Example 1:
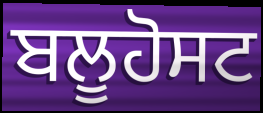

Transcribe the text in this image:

ਬਲੂਹੋਸਟ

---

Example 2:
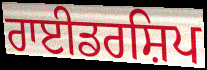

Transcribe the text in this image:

ਰਾਈਡਰਸ਼ਿਪ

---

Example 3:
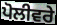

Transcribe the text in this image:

ਪੋਲੀਵਰੇ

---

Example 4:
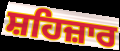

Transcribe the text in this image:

ਸ਼ਹਿਜ਼ਾਰ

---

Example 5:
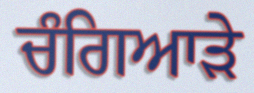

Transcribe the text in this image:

ਚੰਗਿਆੜੇ